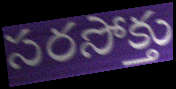
సరసోక్తు